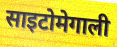
साइटोमेगाली